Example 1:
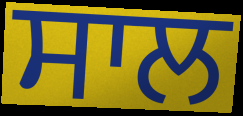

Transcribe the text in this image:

ਸਾਲ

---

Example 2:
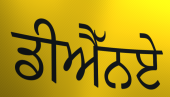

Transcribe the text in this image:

ਡੀਐੱਨਏ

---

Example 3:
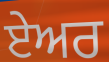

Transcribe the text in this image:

ਏਅਰ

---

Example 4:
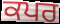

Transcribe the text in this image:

ਕਪਰ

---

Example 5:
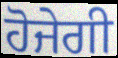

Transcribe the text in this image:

ਹੋਜੇਗੀ